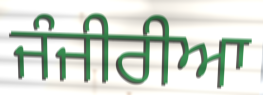
ਜੰਜੀਰੀਆ